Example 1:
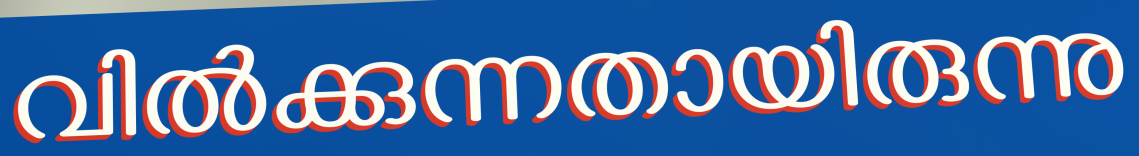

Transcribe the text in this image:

വിൽക്കുന്നതായിരുന്നു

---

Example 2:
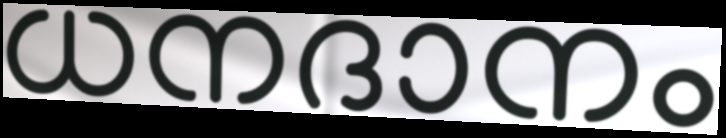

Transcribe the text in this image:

ധനദാനം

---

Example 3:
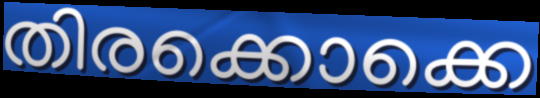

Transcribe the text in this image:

തിരക്കൊക്കെ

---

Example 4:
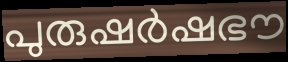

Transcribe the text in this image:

പുരുഷർഷഭൗ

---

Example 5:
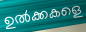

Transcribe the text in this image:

ഉൽക്കകളെ